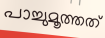
പാച്ചുമൂത്തത്